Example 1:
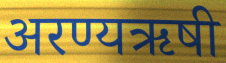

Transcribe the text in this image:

अरण्यऋषी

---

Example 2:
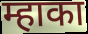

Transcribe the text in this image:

म्हाका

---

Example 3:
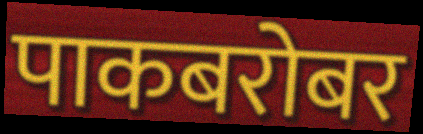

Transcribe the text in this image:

पाकबरोबर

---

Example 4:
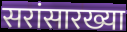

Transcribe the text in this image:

सरांसारख्या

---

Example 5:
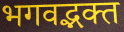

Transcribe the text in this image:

भगवद्भक्त